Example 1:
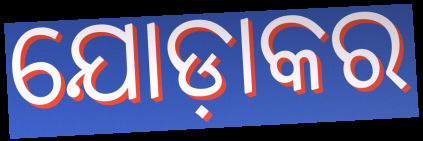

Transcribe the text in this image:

ଯୋଡ଼ାକର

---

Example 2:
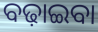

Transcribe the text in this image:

ବଢ଼ାଇବା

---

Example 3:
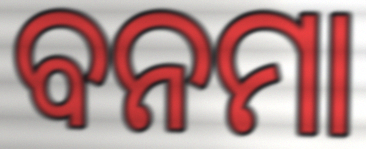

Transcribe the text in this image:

ବନମା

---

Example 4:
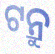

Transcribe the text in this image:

ଟନ୍ରୁ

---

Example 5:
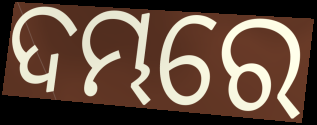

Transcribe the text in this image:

ଦମ୍ଭରେ